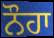
ਨੌਹਾ